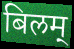
बिलम्